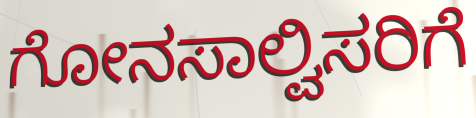
ಗೋನಸಾಲ್ವಿಸರಿಗೆ